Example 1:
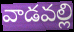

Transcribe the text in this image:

వాడవల్లి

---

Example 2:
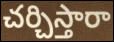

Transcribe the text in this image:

చర్చిస్తారా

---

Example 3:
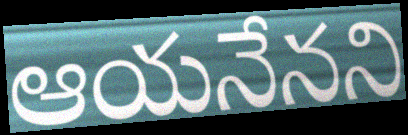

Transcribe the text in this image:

ఆయనేనని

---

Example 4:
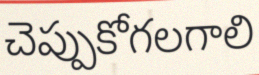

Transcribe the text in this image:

చెప్పుకోగలగాలి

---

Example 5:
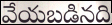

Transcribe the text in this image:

వేయబడినది